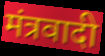
मंत्रवादी